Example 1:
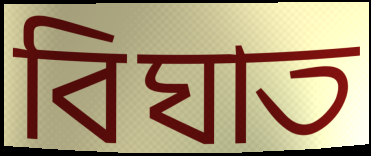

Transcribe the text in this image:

বিঘাত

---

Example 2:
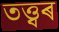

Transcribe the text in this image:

তত্ত্বৰ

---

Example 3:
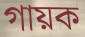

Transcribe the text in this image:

গায়ক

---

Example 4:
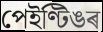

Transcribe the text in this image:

পেইণ্টিঙৰ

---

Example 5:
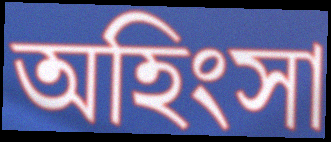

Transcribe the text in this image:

অহিংসা